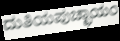
ದುತಿಯಪುಚ್ಛಾಯಂ